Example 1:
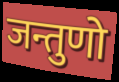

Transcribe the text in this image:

जन्तुणो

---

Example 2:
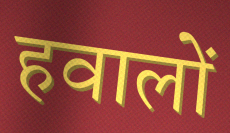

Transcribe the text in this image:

हवालों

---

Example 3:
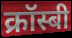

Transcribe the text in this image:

क्रॉस्बी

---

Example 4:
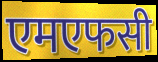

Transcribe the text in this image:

एमएफसी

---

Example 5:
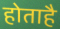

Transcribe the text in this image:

होताहै